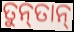
ତୁନ୍‍ତାନ୍